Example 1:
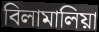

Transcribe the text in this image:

বিলামালিয়া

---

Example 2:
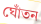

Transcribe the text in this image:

ঘোঁতন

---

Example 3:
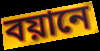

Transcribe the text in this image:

বয়ানে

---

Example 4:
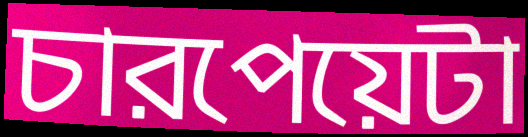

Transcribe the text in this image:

চারপেয়েটা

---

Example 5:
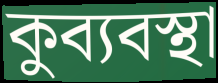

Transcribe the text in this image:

কুব্যবস্থা